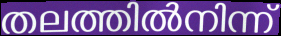
തലത്തിൽനിന്ന്